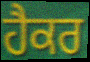
ਹੈਕਰ